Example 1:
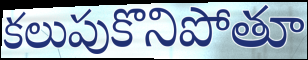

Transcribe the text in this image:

కలుపుకొనిపోతూ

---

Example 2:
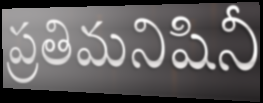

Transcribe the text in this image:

ప్రతిమనిషినీ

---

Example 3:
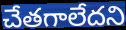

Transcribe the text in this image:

చేతగాలేదని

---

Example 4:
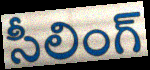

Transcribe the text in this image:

సీలింగ్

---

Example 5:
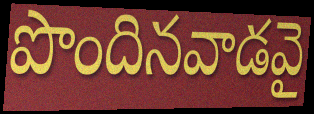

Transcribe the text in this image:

పొందినవాడవై